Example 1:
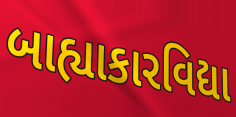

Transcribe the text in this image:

બાહ્યાકારવિદ્યા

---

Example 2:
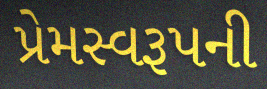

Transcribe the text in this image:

પ્રેમસ્વરૂપની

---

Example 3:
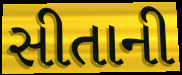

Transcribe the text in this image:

સીતાની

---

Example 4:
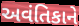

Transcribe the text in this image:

અવંતિકાને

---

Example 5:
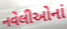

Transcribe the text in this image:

નવેલીઓનાં